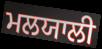
ਮਲਯਾਲੀ